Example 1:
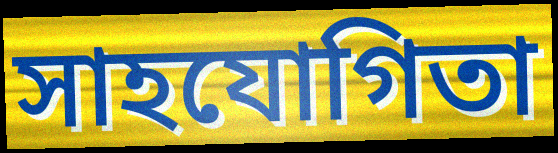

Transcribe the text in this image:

সাহযোগিতা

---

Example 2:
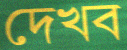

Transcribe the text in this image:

দেখব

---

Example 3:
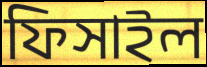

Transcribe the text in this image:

ফিসাইল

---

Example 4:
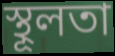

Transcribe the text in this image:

স্থূলতা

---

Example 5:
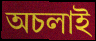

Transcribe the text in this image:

অচলাই